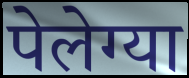
पेलेग्या